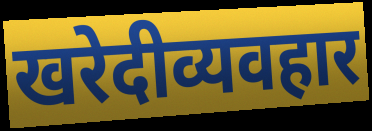
खरेदीव्यवहार